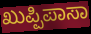
ಖುಪ್ಪಿಪಾಸಾ